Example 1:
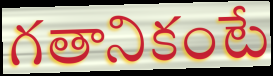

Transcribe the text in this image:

గతానికంటే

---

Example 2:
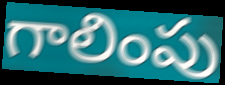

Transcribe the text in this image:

గాలింపు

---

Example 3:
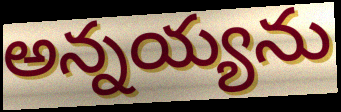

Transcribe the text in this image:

అన్నయ్యను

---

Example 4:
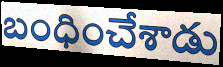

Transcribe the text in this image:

బంధించేశాడు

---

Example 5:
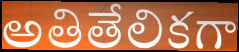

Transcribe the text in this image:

అతితేలికగా